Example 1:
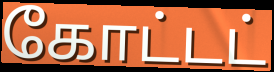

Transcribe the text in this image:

கோட்டட்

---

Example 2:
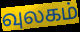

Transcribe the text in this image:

வுலகம்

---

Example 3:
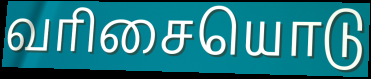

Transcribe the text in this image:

வரிசையொடு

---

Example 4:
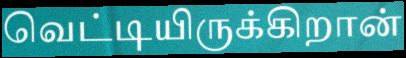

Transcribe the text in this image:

வெட்டியிருக்கிறான்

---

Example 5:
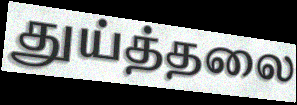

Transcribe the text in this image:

துய்த்தலை